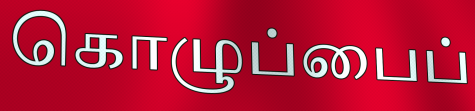
கொழுப்பைப்